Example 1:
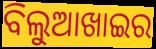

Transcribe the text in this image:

ବିଲୁଆଖାଇର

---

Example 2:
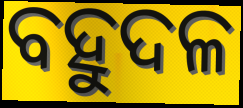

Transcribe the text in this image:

ବହୁଦଳ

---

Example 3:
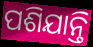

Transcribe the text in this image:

ପଶିଯାନ୍ତି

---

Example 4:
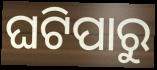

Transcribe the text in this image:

ଘଟିପାରୁ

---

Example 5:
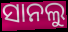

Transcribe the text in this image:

ସାନଲୁ